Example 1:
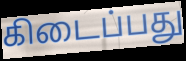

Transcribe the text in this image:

கிடைப்பது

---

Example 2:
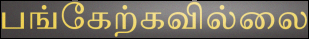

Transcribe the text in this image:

பங்கேற்கவில்லை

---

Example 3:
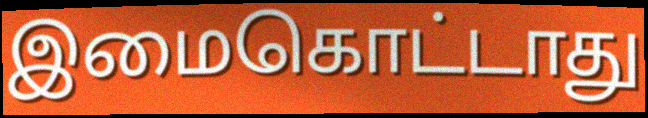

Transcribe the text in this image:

இமைகொட்டாது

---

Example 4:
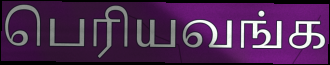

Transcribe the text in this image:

பெரியவங்க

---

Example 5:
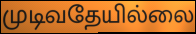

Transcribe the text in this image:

முடிவதேயில்லை